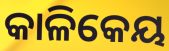
କାଳିକେୟ